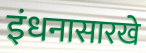
इंधनासारखे